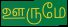
ஊருமே